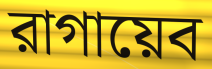
রাগায়েব